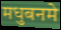
मधुबनमे